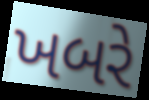
ખબરે